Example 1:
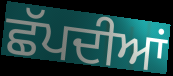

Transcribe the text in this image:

ਛੱਪਦੀਆਂ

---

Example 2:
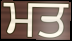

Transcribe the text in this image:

ਮਤ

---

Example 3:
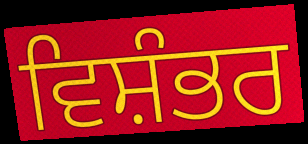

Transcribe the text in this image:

ਵਿਸ਼ੰਭਰ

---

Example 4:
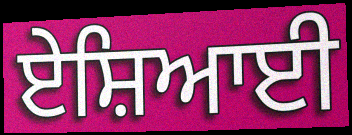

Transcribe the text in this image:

ਏਸ਼ਿਆਈ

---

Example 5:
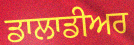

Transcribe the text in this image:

ਡਾਲਾਡੀਅਰ